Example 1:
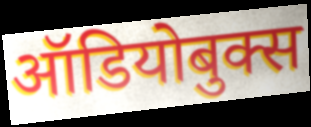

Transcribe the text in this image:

ऑडियोबुक्स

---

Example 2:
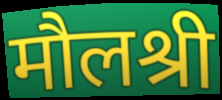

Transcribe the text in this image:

मौलश्री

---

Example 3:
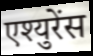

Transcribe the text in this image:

एश्युरेंस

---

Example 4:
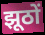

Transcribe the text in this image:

झूठों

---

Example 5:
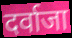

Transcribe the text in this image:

दर्वाजा